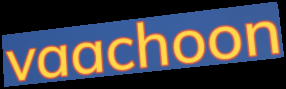
vaachoon